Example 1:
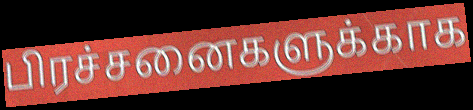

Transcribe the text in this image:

பிரச்சனைகளுக்காக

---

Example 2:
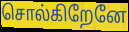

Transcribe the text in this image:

சொல்கிறேனே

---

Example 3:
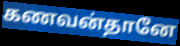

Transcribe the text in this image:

கணவன்தானே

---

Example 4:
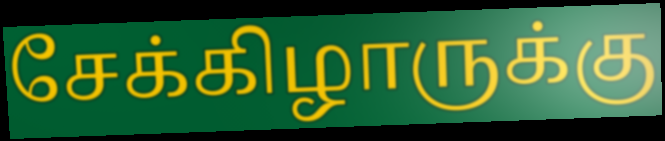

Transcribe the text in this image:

சேக்கிழாருக்கு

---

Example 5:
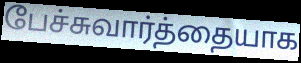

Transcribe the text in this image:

பேச்சுவார்த்தையாக